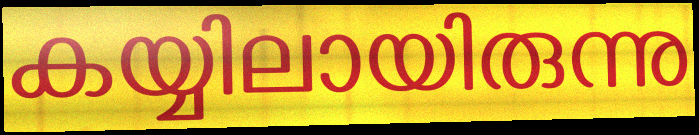
കയ്യിലായിരുന്നു